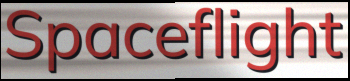
Spaceflight